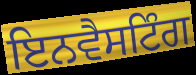
ਇਨਵੈਸਟਿੰਗ